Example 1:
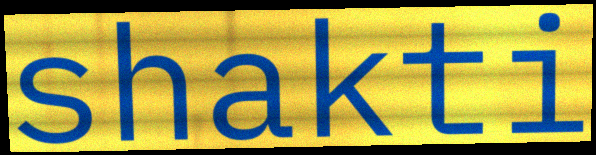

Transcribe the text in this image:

shakti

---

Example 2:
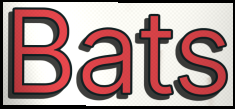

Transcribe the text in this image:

Bats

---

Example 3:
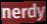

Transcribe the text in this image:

nerdy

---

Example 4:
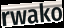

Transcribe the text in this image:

rwako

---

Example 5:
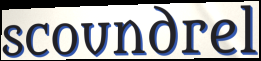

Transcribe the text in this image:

scoundrel